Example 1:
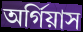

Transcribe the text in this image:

অর্গিয়াস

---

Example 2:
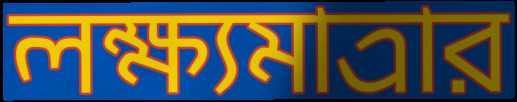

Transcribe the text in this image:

লক্ষ্যমাত্রার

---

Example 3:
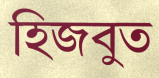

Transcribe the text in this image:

হিজবুত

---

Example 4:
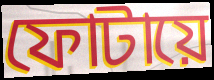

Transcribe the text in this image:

ফোটায়ে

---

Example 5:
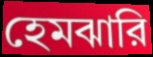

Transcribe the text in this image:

হেমঝারি